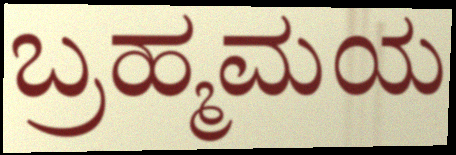
ಬ್ರಹ್ಮಮಯ